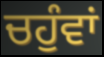
ਚਹੁੰਵਾਂ